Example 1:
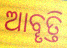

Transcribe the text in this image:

ଆବୄତ୍ତି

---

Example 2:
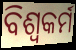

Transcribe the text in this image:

ବିଶ୍ୱକର୍ମ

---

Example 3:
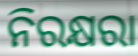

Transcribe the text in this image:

ନିରକ୍ଷରା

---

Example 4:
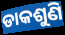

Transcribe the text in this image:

ଡାକଶୁଣି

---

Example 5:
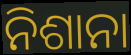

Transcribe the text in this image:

ନିଶାନା